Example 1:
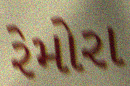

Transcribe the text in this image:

રેમોરા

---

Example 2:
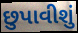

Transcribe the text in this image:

છુપાવીશું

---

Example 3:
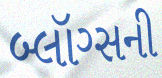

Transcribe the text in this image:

બ્લૉગ્સની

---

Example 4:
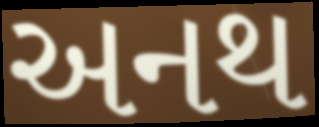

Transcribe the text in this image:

અનથ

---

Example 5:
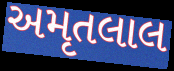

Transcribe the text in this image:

અમૃતલાલ